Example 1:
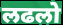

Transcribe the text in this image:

लढलो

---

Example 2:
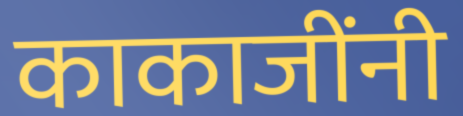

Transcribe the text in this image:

काकाजींनी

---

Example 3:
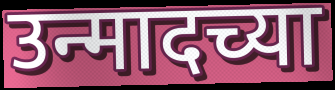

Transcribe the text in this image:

उन्मादच्या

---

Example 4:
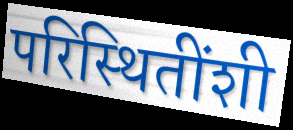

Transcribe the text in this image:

परिस्थितींशी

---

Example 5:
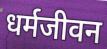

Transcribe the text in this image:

धर्मजीवन